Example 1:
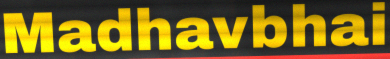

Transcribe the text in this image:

Madhavbhai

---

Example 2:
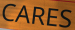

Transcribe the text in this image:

CARES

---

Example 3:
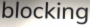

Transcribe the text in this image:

blocking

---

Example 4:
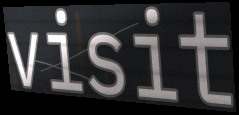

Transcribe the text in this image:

visit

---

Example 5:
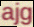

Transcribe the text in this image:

ajg